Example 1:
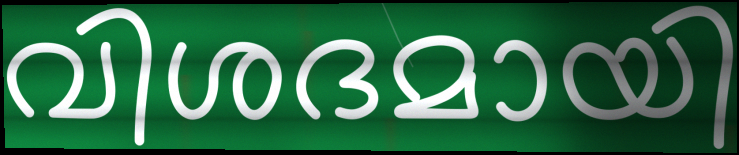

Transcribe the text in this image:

വിശദമായി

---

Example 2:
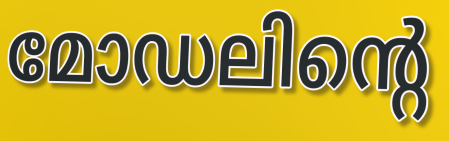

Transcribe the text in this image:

മോഡലിന്റെ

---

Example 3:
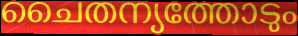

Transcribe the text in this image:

ചൈതന്യത്തോടും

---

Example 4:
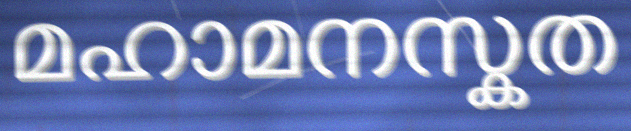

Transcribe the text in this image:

മഹാമനസ്കത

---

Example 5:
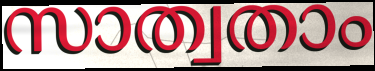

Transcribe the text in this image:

സാത്വതാം